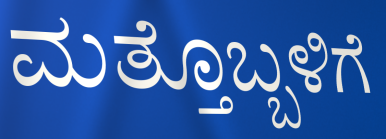
ಮತ್ತೊಬ್ಬಳಿಗೆ